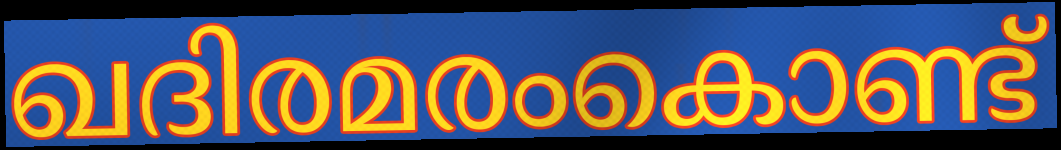
ഖദിരമരംകൊണ്ട്